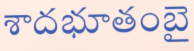
శాదభూతంబై